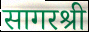
सागरश्री